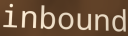
inbound